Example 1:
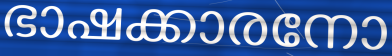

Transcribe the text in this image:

ഭാഷക്കാരനോ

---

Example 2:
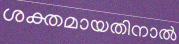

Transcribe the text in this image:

ശക്തമായതിനാൽ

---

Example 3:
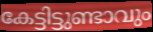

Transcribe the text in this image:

കേട്ടിട്ടുണ്ടാവും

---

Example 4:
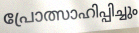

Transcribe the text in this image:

പ്രോത്സാഹിപ്പിച്ചും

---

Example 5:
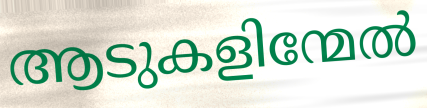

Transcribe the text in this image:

ആടുകളിന്മേൽ